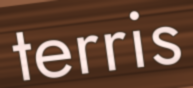
terris